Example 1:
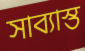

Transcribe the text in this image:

সাব্যাস্ত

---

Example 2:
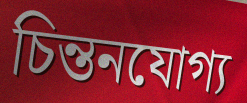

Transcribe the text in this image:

চিন্তনযোগ্য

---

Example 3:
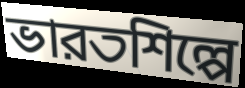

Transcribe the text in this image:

ভারতশিল্পে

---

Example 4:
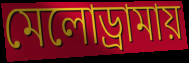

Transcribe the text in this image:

মেলোড্রামায়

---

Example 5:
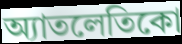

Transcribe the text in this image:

অ্যাতলেতিকো